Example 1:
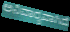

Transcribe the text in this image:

ಅನಿವಾರ‍್ಯವಾಗಿದೆ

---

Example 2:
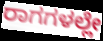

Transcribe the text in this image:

ರಾಗಗಳಲ್ಲೇ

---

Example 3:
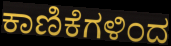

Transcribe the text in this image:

ಕಾಣಿಕೆಗಳಿಂದ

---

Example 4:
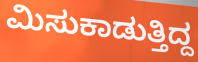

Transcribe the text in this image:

ಮಿಸುಕಾಡುತ್ತಿದ್ದ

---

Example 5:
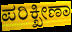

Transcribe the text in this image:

ಪರಿಕ್ಖೀಣಾ